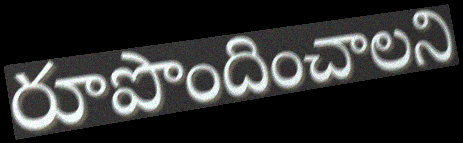
రూపొందించాలని